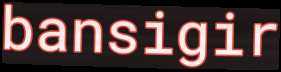
bansigir